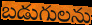
బడుగులను